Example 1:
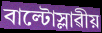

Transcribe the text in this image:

বাল্টোস্লাৱীয়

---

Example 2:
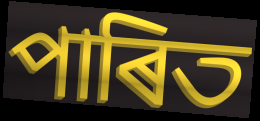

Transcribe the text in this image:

পাৰিত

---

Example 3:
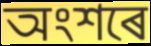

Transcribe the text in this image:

অংশৰে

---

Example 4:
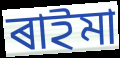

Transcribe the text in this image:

ৰাইমা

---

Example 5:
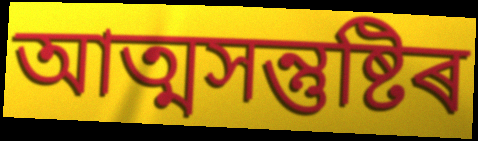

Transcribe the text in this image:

আত্মসন্তুষ্টিৰ